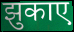
झुकाए